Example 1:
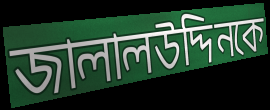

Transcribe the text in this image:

জালালউদ্দিনকে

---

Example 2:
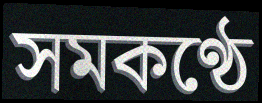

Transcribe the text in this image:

সমকণ্ঠে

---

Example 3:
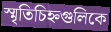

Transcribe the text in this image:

স্মৃতিচিহ্নগুলিকে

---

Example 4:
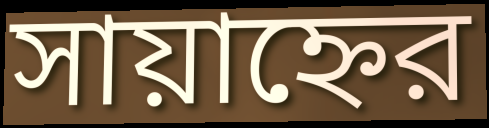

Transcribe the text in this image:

সায়াহ্নের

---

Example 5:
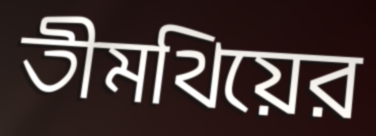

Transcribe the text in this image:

তীমথিয়ের